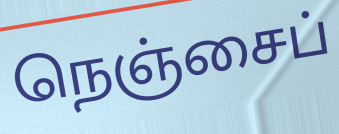
நெஞ்சைப்